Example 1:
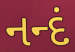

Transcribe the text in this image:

નન્દં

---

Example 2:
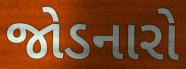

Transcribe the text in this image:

જોડનારો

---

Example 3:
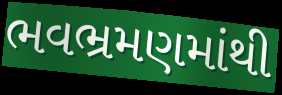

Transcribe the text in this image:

ભવભ્રમણમાંથી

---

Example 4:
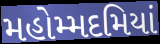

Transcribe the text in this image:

મહોમ્મદમિયાં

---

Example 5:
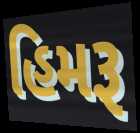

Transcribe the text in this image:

હિમરૂ